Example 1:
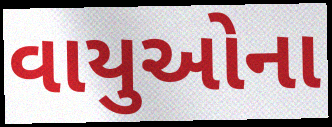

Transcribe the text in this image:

વાયુઓના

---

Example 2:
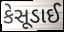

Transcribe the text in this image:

કેસૂડાઈ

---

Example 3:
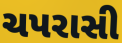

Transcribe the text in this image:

ચપરાસી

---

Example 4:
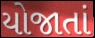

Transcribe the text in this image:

યોજાતાં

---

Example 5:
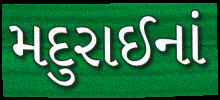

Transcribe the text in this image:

મદુરાઈનાં